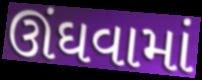
ઊંઘવામાં